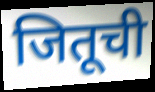
जितूची